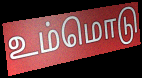
உம்மொடு